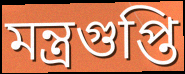
মন্ত্রগুপ্তি